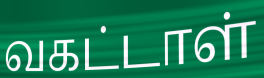
வகட்டாள்